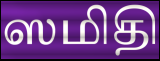
ஸமிதி